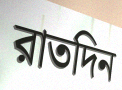
রাতদিন